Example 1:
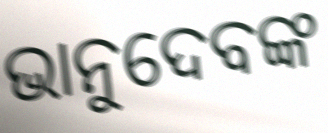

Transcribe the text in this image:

ଭାନୁଦେବଙ୍କ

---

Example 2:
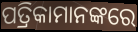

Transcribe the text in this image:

ପତ୍ରିକାମାନଙ୍କରେ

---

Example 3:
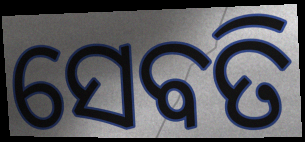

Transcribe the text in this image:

ସେବତି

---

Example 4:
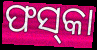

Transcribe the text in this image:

ଫସ୍‌କା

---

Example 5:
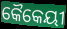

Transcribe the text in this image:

କୈକେୟୀ